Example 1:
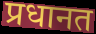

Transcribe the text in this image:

प्रधानत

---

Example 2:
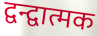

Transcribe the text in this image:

द्वन्द्वात्मक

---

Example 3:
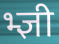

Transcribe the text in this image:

भ्ज्ञी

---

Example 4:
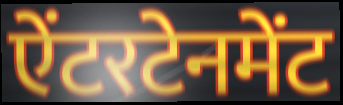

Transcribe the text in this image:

ऐंटरटेनमेंट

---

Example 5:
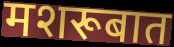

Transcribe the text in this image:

मशरूबात